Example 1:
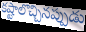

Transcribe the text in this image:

కష్టాలొచ్చినప్పుడు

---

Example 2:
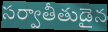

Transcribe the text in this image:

సర్వాతీతుడైన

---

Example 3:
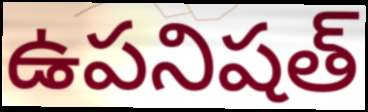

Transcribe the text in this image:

ఉపనిషత్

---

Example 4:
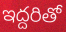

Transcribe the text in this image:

ఇద్దరితో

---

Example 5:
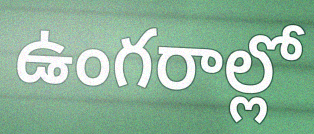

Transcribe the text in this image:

ఉంగరాల్లో